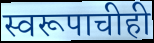
स्वरूपाचीही